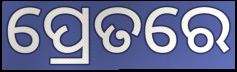
ପ୍ରେତରେ